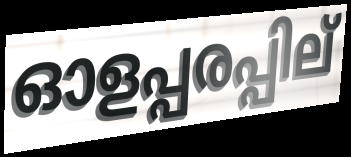
ഓളപ്പരപ്പില്